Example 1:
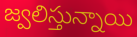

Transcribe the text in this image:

జ్వలిస్తున్నాయి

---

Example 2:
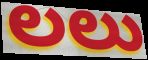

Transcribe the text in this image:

లలు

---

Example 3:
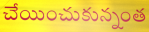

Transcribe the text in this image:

చేయించుకున్నంత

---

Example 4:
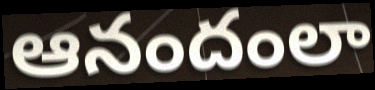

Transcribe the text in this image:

ఆనందంలా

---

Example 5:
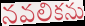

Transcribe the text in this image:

నవలికను